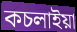
কচলাইয়া